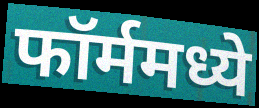
फॉर्ममध्ये